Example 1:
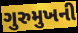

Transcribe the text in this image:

ગુરુમુખની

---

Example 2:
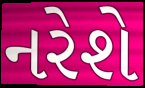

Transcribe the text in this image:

નરેશે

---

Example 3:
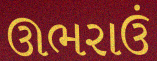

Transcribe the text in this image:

ઊભરાઉં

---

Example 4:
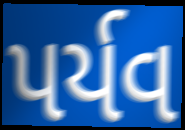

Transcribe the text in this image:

પર્યવ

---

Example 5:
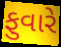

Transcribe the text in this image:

ફુવારે